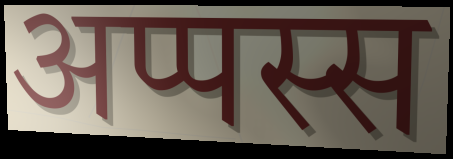
अप्पस्स